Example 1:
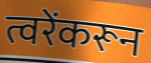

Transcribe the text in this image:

त्वरेंकरून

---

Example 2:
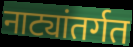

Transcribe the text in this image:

नाट्यांतर्गत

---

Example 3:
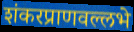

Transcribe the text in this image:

शंकरप्राणवल्लभे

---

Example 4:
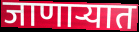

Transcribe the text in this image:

जाणाऱ्यात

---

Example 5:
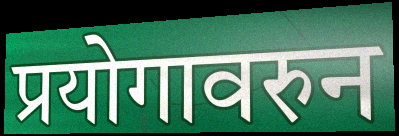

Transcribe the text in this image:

प्रयोगावरुन